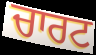
ਚਾਰਟ